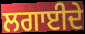
ਲਗਾਈਦੇ